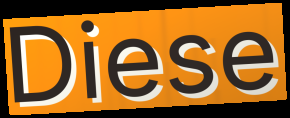
Diese